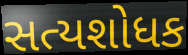
સત્યશોધક